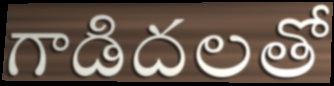
గాడిదలతో